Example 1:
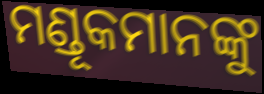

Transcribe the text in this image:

ମଣ୍ଡୂକମାନଙ୍କୁ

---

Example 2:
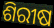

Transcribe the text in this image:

ଶିରୀଷ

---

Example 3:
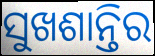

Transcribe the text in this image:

ସୁଖଶାନ୍ତିର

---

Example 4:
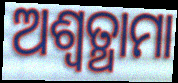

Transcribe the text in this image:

ଅଶ୍ଵତ୍ଥାମା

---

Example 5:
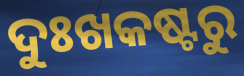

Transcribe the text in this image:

ଦୁଃଖକଷ୍ଟରୁ